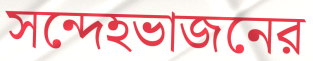
সন্দেহভাজনের